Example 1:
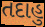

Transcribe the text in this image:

તદાહુ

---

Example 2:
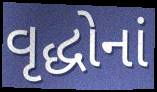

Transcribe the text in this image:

વૃદ્ધોનાં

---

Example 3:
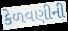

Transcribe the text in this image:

કેળવણીની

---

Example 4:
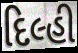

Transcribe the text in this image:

દિલ્હી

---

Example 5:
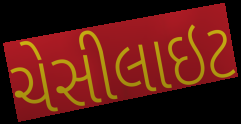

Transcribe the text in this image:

ચેસીલાઇટ